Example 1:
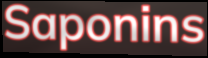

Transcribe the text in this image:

Saponins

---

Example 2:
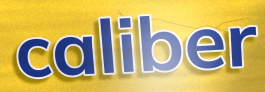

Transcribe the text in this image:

caliber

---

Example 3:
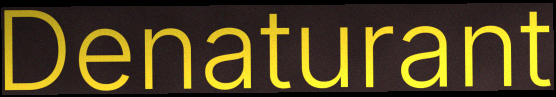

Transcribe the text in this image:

Denaturant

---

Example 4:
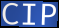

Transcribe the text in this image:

CIP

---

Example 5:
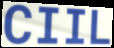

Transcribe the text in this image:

CIIL